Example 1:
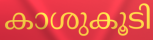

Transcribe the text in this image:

കാശുകൂടി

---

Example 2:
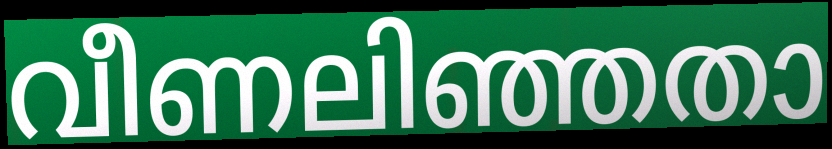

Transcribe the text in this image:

വീണലിഞ്ഞതാ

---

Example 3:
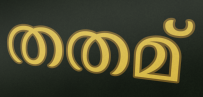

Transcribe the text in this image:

തതമ്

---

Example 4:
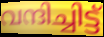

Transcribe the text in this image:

വന്ദിച്ചിട്ട്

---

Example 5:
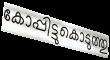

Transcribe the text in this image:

കോപ്പിട്ടുകൊടുത്തു